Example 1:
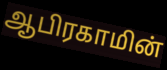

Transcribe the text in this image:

ஆபிரகாமின்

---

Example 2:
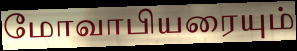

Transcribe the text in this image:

மோவாபியரையும்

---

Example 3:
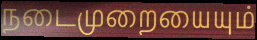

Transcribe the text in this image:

நடைமுறையையும்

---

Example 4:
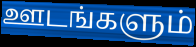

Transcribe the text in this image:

ஊடங்களும்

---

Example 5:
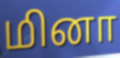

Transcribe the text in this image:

மினா